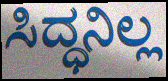
ಸಿದ್ಧನಿಲ್ಲ